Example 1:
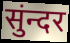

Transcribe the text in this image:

सुंन्दर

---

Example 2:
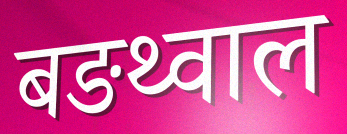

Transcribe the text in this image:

बङथ्वाल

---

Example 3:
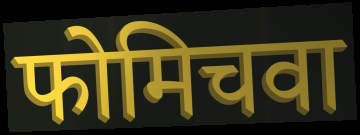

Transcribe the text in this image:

फोमिचवा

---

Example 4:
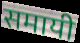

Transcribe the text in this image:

समायी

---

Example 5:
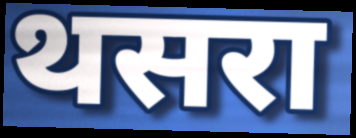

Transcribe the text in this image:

थसरा